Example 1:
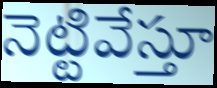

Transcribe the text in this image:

నెట్టివేస్తూ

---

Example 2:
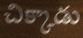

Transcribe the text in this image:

చిక్కాడు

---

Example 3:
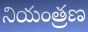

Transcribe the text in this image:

నియంత్రణ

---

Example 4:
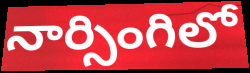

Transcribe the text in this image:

నార్సింగిలో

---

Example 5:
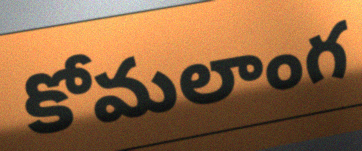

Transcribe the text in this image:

కోమలాంగ